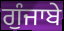
ਗੁੰਜਾਬੇ